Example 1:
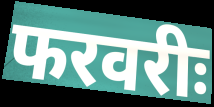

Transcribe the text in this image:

फरवरीः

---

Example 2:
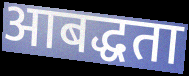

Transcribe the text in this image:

आबद्धता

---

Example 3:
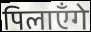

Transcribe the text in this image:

पिलाएँगे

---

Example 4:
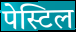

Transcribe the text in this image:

पेस्टिल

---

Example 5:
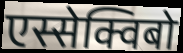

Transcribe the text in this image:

एस्सेक्विबो